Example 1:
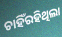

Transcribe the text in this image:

ଚାହିଁରହିଥିଲା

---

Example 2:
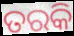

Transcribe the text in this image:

ତରକି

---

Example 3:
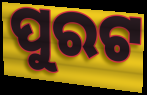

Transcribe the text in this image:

ପୁରଟ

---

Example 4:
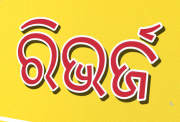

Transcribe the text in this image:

ରିଭର୍ଜ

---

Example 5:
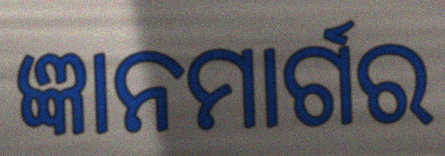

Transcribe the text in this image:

ଜ୍ଞାନମାର୍ଗର